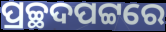
ପ୍ରଚ୍ଛଦପଟ୍ଟରେ